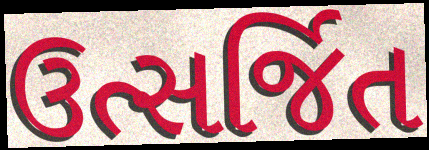
ઉત્સર્જિત